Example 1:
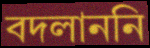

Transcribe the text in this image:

বদলাননি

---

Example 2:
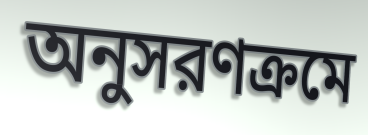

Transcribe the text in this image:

অনুসরণক্রমে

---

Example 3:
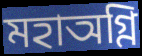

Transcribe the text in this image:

মহাঅগ্নি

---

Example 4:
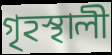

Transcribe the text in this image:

গৃহস্থালী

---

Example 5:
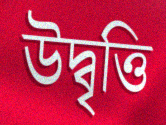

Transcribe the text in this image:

উদ্বৃত্তি